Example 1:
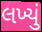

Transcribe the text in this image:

લખ્યું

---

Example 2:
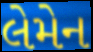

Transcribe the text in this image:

લેમેન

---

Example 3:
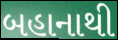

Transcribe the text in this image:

બહાનાથી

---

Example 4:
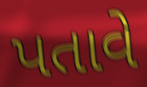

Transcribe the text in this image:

પતાવે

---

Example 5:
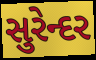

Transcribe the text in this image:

સુરેન્દર